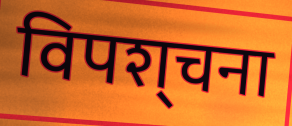
विपश्चना